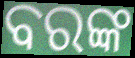
ବରଙ୍କ